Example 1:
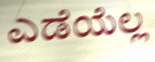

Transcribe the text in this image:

ಎಡೆಯೆಲ್ಲ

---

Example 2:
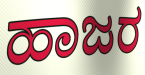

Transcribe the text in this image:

ಹಾಜರ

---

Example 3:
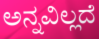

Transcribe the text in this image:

ಅನ್ನವಿಲ್ಲದೆ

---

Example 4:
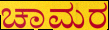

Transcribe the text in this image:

ಚಾಮರ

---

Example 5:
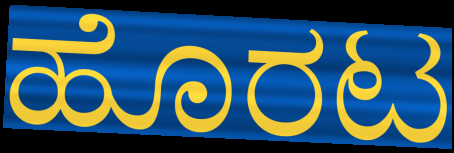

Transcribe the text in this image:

ಹೊರಟ